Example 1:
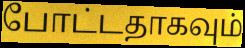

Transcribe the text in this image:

போட்டதாகவும்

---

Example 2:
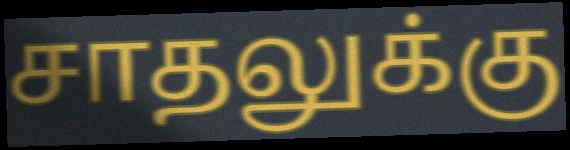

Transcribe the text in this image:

சாதலுக்கு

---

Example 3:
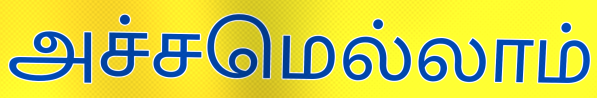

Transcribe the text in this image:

அச்சமெல்லாம்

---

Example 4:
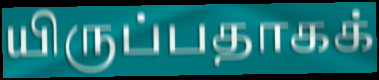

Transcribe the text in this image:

யிருப்பதாகக்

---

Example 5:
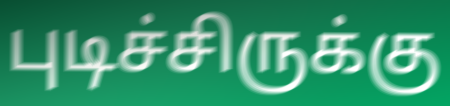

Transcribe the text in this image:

புடிச்சிருக்கு